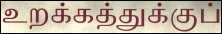
உறக்கத்துக்குப்